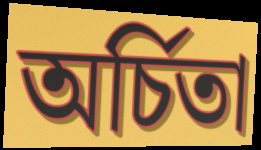
অৰ্চিতা